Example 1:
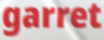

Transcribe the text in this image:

garret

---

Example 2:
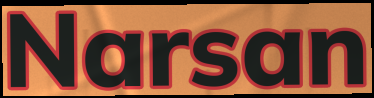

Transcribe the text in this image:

Narsan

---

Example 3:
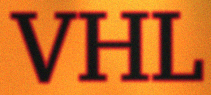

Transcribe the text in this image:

VHL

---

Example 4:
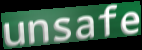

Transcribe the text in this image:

unsafe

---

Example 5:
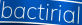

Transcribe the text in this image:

bactirial